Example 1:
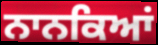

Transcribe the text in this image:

ਨਾਨਕਿਆਂ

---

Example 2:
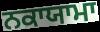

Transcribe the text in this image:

ਨਕਾਯਾਮਾ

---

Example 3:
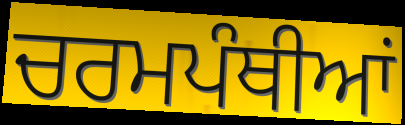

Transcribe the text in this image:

ਚਰਮਪੰਥੀਆਂ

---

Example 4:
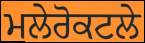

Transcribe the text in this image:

ਮਲੇਰੋਕਟਲੇ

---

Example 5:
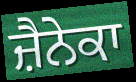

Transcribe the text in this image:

ਜ਼ੈਨੇਕਾ